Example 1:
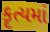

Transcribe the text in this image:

કૃત્યમાં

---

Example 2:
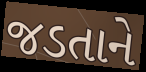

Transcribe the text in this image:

જડતાને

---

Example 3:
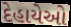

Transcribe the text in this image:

દેહાયેઓ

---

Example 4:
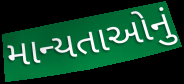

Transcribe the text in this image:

માન્યતાઓનું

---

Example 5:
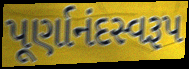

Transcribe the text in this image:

પૂર્ણાનંદસ્વરૂપ